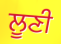
ਲੂਣੀ